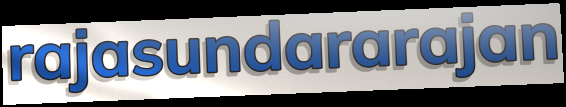
rajasundararajan